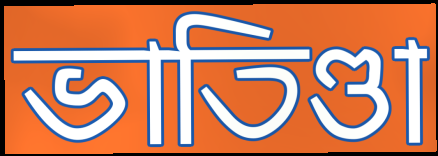
ভাতিণ্ডা